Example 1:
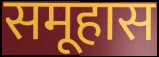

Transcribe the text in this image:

समूहास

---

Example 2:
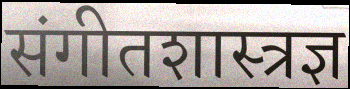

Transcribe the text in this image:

संगीतशास्त्रज्ञ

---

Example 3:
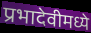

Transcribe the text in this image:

प्रभादेवीमध्ये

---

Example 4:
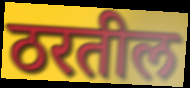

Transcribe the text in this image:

ठरतील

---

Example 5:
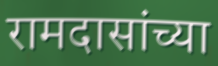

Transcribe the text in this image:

रामदासांच्या